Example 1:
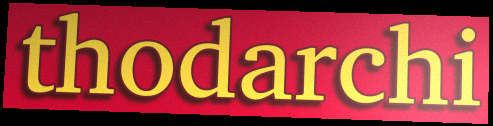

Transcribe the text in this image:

thodarchi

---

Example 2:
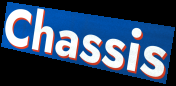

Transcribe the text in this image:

Chassis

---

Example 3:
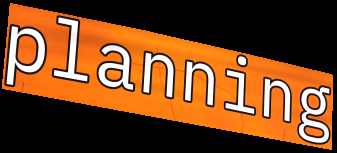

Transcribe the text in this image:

planning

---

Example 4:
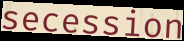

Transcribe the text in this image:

secession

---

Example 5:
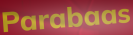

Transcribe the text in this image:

Parabaas